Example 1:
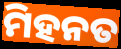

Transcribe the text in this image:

ମିହନତ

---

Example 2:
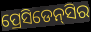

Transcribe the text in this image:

ପ୍ରେସିଡେନ୍‌ସିର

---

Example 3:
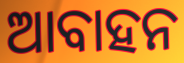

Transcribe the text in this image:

ଆବାହନ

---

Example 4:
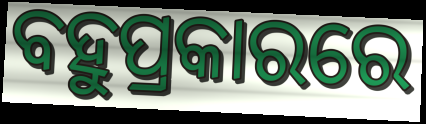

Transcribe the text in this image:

ବହୁପ୍ରକାରରେ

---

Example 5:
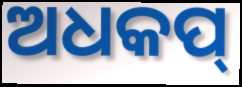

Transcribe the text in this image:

ଅଧକପ୍